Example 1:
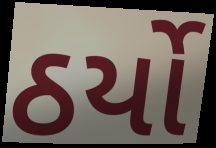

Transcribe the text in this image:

ઠર્યો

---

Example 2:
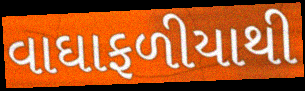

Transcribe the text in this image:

વાઘાફળીયાથી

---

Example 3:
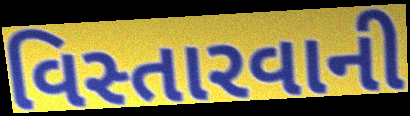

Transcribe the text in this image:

વિસ્તારવાની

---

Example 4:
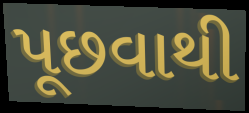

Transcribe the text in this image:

પૂછવાથી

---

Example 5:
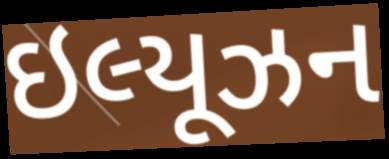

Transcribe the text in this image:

ઇલ્યૂઝન